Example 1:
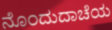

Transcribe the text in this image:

ನೊಂದುದಾಚೆಯ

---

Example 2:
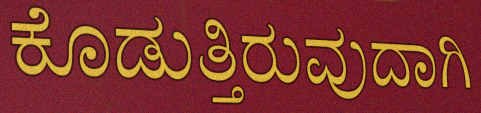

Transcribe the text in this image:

ಕೊಡುತ್ತಿರುವುದಾಗಿ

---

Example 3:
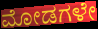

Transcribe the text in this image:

ಮೋಡಗಳೇ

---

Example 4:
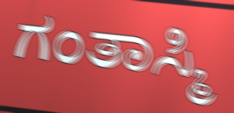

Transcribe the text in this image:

ಗಂತಾಸ್ಮಿ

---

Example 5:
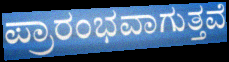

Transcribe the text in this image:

ಪ್ರಾರಂಭವಾಗುತ್ತವೆ